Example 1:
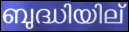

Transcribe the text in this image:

ബുദ്ധിയില്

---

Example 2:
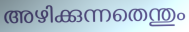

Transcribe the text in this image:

അഴിക്കുന്നതെന്തും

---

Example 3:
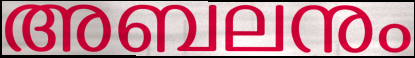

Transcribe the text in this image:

അബലനും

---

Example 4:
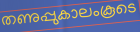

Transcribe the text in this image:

തണുപ്പുകാലംകൂടെ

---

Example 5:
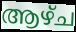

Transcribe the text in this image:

ആഴ്ച